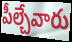
పీల్చేవారు